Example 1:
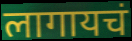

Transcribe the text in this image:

लागायचं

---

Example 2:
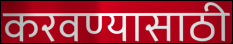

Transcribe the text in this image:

करवण्यासाठी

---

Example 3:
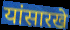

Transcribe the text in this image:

यांसारखे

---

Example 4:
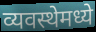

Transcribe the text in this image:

व्यवस्थेमध्ये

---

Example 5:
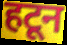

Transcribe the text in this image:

हटून